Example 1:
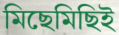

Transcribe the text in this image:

মিছেমিছিই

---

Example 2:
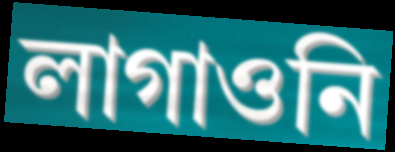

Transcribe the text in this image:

লাগাওনি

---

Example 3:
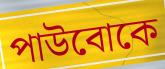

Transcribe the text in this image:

পাউবোকে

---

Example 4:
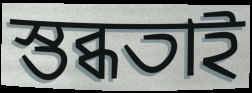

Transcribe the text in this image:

স্তব্ধতাই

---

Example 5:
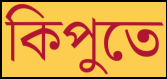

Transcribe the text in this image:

কিপুতে